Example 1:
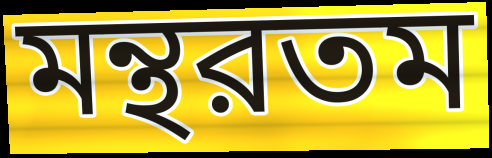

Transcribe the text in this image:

মন্থরতম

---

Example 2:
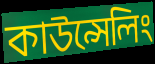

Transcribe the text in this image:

কাউন্সেলিং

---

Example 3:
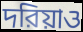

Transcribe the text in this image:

দরিয়াও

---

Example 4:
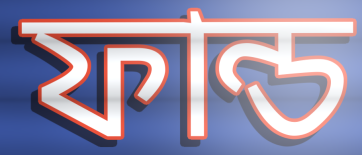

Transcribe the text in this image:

ফান্ড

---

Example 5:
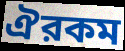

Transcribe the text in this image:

ঐরকম